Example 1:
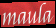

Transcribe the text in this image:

maula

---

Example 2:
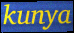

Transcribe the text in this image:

kunya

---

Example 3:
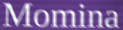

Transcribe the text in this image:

Momina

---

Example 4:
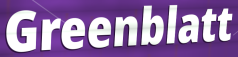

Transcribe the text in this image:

Greenblatt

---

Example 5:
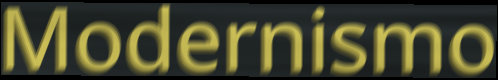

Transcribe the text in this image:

Modernismo